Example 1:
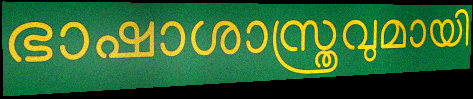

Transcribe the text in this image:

ഭാഷാശാസ്ത്രവുമായി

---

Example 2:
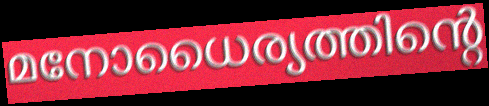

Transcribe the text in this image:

മനോധൈര്യത്തിന്റെ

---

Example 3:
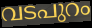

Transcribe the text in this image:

വടപുറം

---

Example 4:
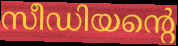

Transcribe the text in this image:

സീഡിയന്റെ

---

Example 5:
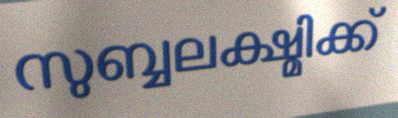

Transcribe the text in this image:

സുബ്ബലക്ഷ്മിക്ക്